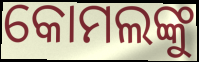
କୋମଲଙ୍କୁ